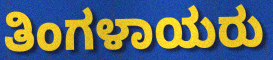
ತಿಂಗಳಾಯರು